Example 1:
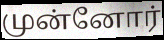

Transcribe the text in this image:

முன்னோர்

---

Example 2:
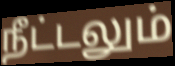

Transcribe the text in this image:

நீட்டலும்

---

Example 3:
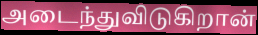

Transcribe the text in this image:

அடைந்துவிடுகிறான்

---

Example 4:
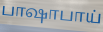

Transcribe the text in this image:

பாஷாபாய்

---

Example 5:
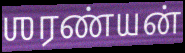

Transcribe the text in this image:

ஶரண்யன்